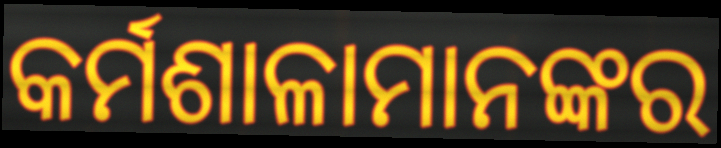
କର୍ମଶାଳାମାନଙ୍କର